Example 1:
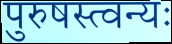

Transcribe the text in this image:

पुरुषस्त्वन्यः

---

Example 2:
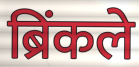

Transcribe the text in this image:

ब्रिंकले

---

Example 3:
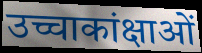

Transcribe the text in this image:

उच्चाकांक्षाओं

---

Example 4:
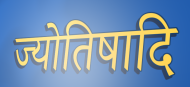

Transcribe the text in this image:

ज्योतिषादि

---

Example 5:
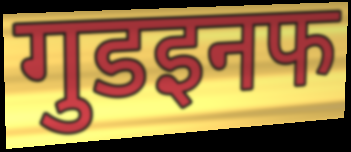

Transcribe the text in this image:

गुडइनफ